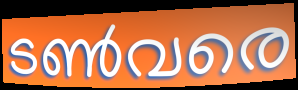
ടൺവരെ